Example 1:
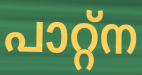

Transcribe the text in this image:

പാറ്റ്ന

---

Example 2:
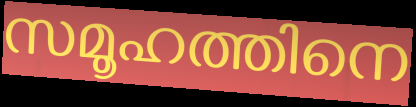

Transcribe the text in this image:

സമൂഹത്തിനെ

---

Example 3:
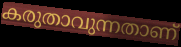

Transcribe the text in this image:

കരുതാവുന്നതാണ്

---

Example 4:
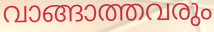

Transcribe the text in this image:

വാങ്ങാത്തവരും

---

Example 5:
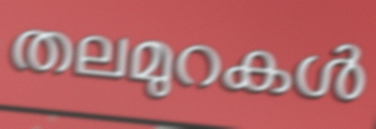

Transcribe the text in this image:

തലമുറകൾ